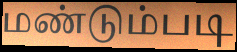
மண்டும்படி